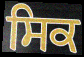
ਸਿਕ